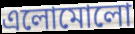
এলোমোলো